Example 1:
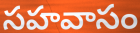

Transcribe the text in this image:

సహవాసం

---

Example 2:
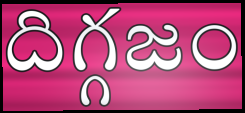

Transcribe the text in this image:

దిగ్గజం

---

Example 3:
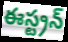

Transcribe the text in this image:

ఈస్ట్రన్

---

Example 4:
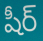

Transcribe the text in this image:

షీర్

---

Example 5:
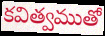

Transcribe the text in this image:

కవిత్వముతో